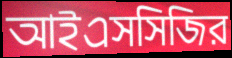
আইএসসিজির